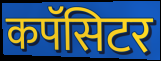
कपॅसिटर